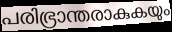
പരിഭ്രാന്തരാകുകയും